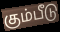
கும்பீடு